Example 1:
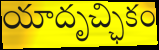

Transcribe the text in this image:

యాదృచ్ఛికం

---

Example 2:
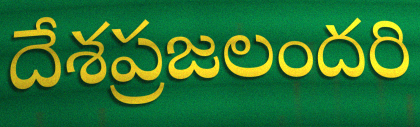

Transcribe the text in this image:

దేశప్రజలందరి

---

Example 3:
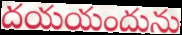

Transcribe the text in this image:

దయయందును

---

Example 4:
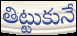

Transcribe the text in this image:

తిట్టుకునే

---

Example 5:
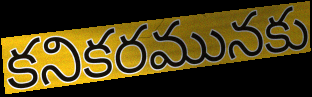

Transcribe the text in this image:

కనికరమునకు